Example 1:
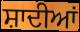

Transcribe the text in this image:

ਸ਼ਾਦੀਆਂ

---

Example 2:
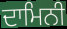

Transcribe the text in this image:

ਦਾਮਿਨੀ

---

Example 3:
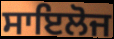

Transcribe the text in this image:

ਸਾਇਲੋਜ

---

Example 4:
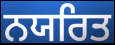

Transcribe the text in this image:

ਨਯਰਿਤ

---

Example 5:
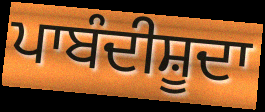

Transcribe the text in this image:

ਪਾਬੰਦੀਸ਼ੂਦਾ